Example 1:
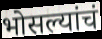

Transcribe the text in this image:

भोसल्यांचं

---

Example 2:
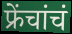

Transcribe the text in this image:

फ्रेंचांचं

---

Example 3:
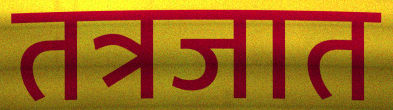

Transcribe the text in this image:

तत्रजात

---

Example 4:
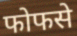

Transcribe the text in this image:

फोफसे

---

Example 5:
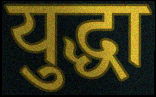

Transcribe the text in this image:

युद्धा